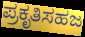
ಪ್ರಕೃತಿಸಹಜ